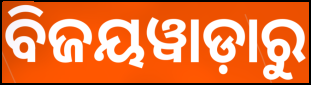
ବିଜୟୱାଡ଼ାରୁ